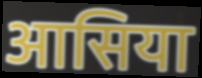
आसिया